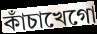
কাঁচাখেগো